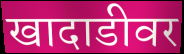
खादाडीवर